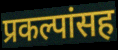
प्रकल्पांसह